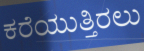
ಕರೆಯುತ್ತಿರಲು